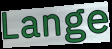
Lange